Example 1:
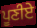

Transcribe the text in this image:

ਪੂਣੀਏ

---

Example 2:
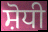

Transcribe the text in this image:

ਸ਼ੋਧੀ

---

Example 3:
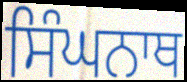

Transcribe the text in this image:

ਸਿੰਘਨਾਥ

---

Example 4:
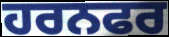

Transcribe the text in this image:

ਹਰਨਫਰ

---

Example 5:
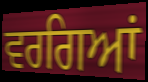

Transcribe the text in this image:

ਵਰਗਿਆਂ